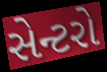
સેન્ટરો